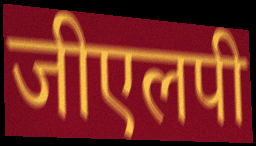
जीएलपी